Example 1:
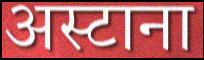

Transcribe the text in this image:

अस्टाना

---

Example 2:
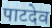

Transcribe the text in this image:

पाटदेव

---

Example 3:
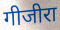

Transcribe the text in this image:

गीजीरा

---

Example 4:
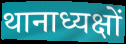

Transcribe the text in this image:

थानाध्यक्षों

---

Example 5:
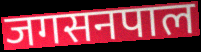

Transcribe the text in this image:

जगसनपाल